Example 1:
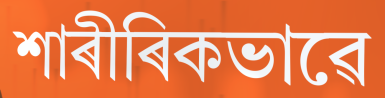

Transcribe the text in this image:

শাৰীৰিকভাৱে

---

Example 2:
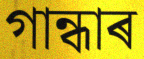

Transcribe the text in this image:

গান্ধাৰ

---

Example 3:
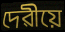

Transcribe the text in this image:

দেৱীয়ে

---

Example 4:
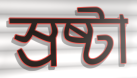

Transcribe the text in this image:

স্ৰষ্টা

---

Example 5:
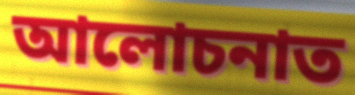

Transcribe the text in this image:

আলোচনাত